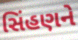
સિંહણને